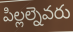
పిల్లల్నెవరు